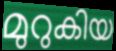
മുറുകിയ